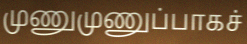
முணுமுணுப்பாகச்